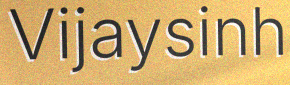
Vijaysinh